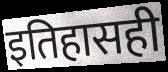
इतिहासही